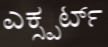
ಎಕ್ಸ್ಪರ್ಟ್